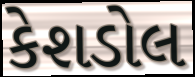
કેશડોલ